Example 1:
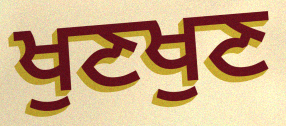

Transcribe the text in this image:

ਖੁਣਖੁਣ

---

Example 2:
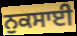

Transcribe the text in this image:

ਨੁਕਸਾਈ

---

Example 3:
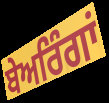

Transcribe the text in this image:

ਬੇਅਰਿੰਗਾਂ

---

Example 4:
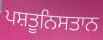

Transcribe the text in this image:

ਪਸ਼ਤੂਨਿਸਤਾਨ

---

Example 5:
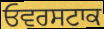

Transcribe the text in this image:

ਓਵਰਸਟਾਕ